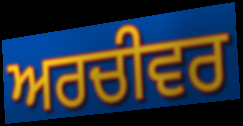
ਅਰਚੀਵਰ